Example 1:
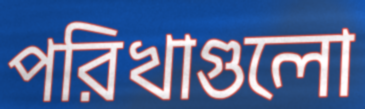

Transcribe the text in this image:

পরিখাগুলো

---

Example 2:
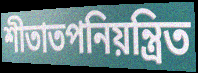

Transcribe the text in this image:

শীতাতপনিয়ন্ত্রিত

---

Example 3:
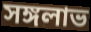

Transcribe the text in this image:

সঙ্গলাভ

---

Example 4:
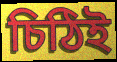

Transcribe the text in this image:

চিঠিই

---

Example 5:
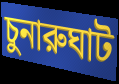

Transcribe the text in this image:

চুনারুঘাট